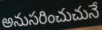
అనుసరించుచునే